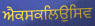
ਐਕਸਕਲਿਉਸਿਵ